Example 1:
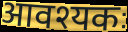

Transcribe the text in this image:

आवश्यकः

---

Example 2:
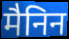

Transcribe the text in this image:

मैनिन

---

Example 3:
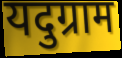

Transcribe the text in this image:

यदुग्राम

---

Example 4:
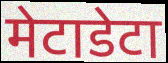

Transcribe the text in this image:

मेटाडेटा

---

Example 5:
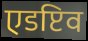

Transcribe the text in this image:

एडप्टिव